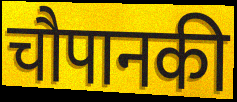
चौपानकी